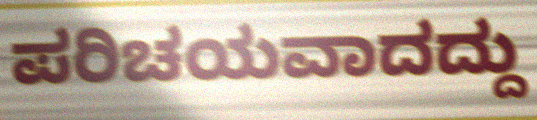
ಪರಿಚಯವಾದದ್ದು